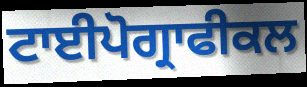
ਟਾਈਪੋਗ੍ਰਾਫੀਕਲ